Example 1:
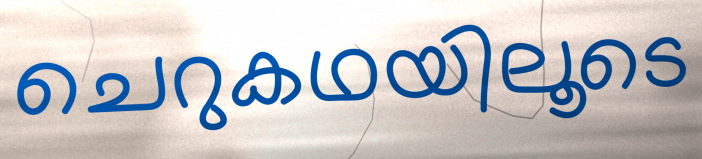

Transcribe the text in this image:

ചെറുകഥയിലൂടെ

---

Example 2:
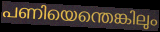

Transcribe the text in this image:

പണിയെന്തെങ്കിലും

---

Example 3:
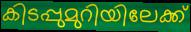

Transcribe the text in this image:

കിടപ്പുമുറിയിലേക്ക്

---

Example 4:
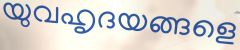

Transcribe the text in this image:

യുവഹൃദയങ്ങളെ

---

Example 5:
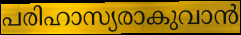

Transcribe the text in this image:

പരിഹാസ്യരാകുവാൻ